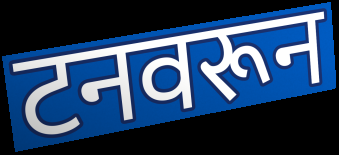
टनवरून